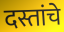
दस्तांचे